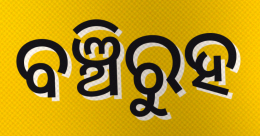
ବଞ୍ଚିରୁହ